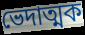
ভেদাত্মক